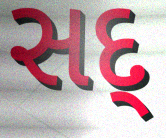
સદ્